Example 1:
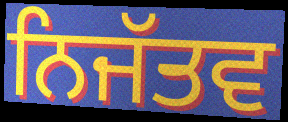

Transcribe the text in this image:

ਨਿਜੱਤਵ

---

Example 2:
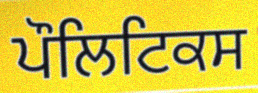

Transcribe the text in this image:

ਪੌਲਿਟਿਕਸ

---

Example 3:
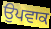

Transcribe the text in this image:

ਉਪਵਾਕ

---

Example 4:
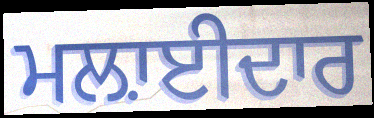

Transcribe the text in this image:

ਮਲ਼ਾਈਦਾਰ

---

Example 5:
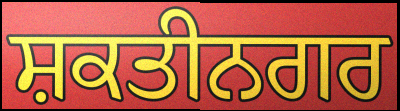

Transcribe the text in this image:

ਸ਼ਕਤੀਨਗਰ